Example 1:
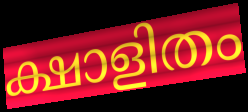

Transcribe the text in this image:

ക്ഷാളിതം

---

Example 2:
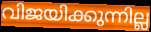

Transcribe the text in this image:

വിജയിക്കുന്നില്ല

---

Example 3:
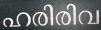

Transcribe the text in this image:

ഹരിരിവ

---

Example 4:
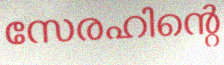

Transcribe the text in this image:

സേരഹിന്റെ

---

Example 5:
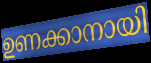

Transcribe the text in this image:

ഉണക്കാനായി